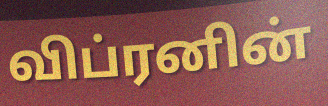
விப்ரனின்